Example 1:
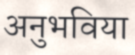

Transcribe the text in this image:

अनुभविया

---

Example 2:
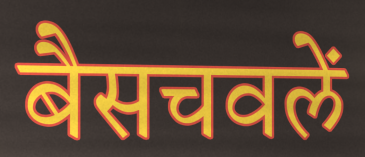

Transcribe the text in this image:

बैसचवलें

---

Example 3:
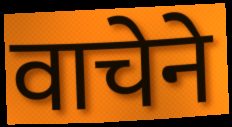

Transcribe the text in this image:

वाचेने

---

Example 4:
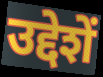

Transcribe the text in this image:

उद्देशें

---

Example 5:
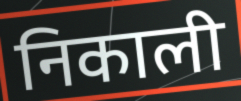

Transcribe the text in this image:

निकाली